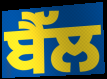
ਬੈੱਲ